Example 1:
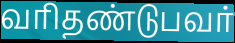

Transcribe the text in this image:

வரிதண்டுபவர்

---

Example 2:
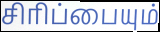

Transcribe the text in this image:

சிரிப்பையும்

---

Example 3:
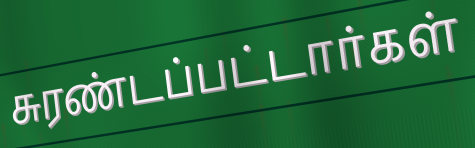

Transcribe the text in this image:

சுரண்டப்பட்டார்கள்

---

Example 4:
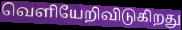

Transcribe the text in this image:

வெளியேறிவிடுகிறது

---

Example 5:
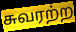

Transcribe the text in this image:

சுவரற்ற